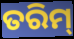
ତରିମ୍